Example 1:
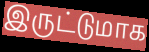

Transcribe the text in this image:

இருட்டுமாக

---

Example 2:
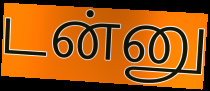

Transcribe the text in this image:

டன்னு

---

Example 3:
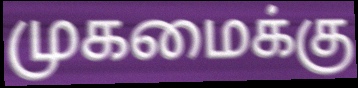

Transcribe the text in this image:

முகமைக்கு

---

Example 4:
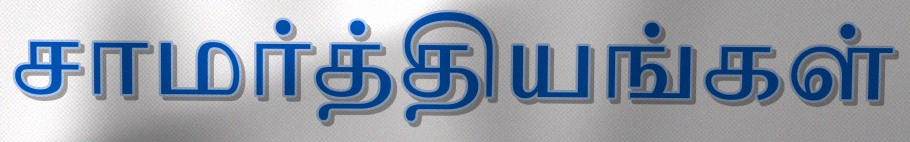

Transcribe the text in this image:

சாமர்த்தியங்கள்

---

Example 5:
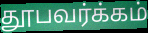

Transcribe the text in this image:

தூபவர்க்கம்